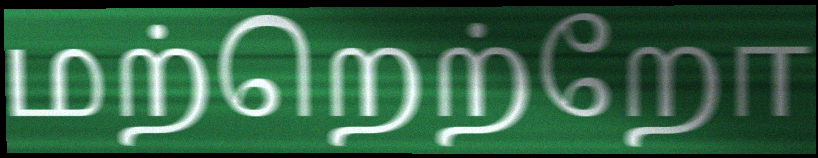
மற்றெற்றோ